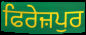
ਫਿਰੇਜ਼ਪੁਰ